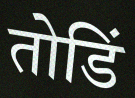
तोडिं